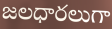
జలధారలుగా